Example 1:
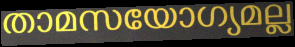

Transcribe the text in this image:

താമസയോഗ്യമല്ല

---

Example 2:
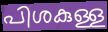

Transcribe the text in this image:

പിശകുള്ള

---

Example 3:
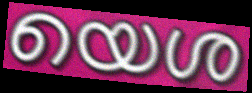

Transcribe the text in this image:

യെശ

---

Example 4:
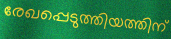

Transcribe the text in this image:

രേഖപ്പെടുത്തിയത്തിന്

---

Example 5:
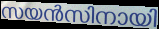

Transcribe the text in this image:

സയൻസിനായി